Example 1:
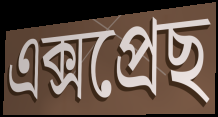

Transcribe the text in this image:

এক্সপ্ৰেছ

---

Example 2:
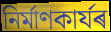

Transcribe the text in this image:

নিৰ্মাণকাৰ্যৰ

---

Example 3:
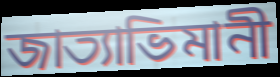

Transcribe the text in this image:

জাত্যাভিমানী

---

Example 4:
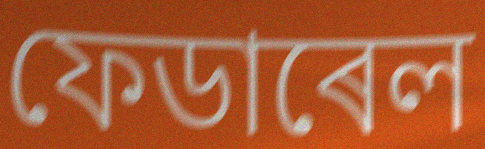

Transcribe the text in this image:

ফেডাৰেল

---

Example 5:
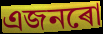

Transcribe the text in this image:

এজনৰো